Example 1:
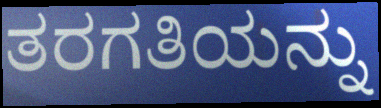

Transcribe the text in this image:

ತರಗತಿಯನ್ನು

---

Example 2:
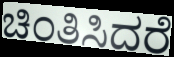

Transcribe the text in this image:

ಚಿಂತಿಸಿದರೆ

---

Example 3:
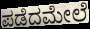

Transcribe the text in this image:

ಪಡೆದಮೇಲೆ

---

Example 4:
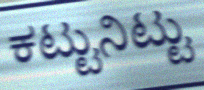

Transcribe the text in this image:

ಕಟ್ಟುನಿಟ್ಟು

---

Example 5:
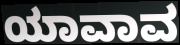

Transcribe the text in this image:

ಯಾವಾವ